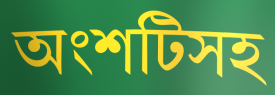
অংশটিসহ